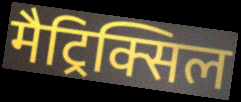
मैट्रिक्सिल